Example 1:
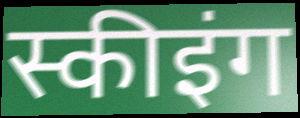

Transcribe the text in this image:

स्कीइंग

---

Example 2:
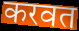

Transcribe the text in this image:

करवत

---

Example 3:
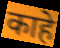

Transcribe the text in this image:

काहे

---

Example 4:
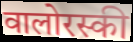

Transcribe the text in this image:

वालोरस्की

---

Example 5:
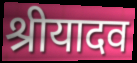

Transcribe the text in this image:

श्रीयादव